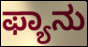
ಫ್ಯಾನು